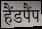
हैंडपैंप